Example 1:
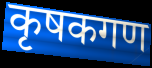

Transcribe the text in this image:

कृषकगण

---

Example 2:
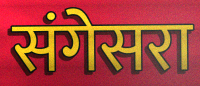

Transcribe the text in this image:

संगेसरा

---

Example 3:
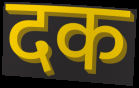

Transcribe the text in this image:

दक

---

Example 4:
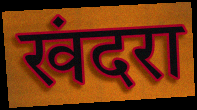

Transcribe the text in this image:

खंदरा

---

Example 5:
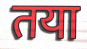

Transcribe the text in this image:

तया